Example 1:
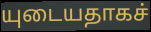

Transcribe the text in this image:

யுடையதாகச்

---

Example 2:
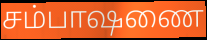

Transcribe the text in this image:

சம்பாஷணை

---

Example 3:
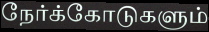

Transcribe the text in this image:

நேர்க்கோடுகளும்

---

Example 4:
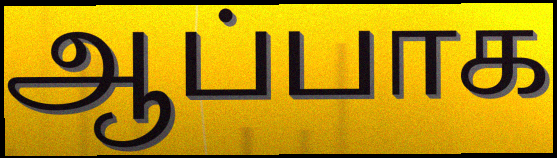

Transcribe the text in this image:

ஆப்பாக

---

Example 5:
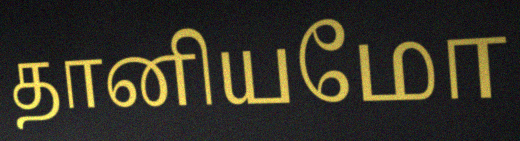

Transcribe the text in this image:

தானியமோ